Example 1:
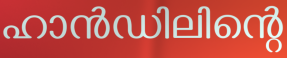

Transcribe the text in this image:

ഹാൻഡിലിന്റെ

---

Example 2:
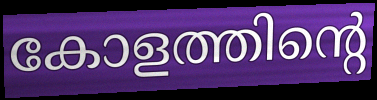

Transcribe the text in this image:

കോളത്തിന്റെ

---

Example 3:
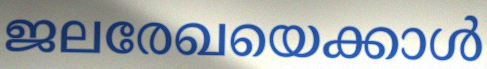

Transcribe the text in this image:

ജലരേഖയെക്കാൾ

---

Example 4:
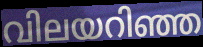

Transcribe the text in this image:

വിലയറിഞ്ഞ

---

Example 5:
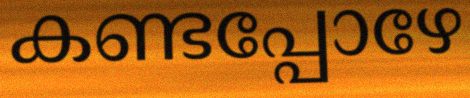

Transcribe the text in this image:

കണ്ടപ്പോഴേ